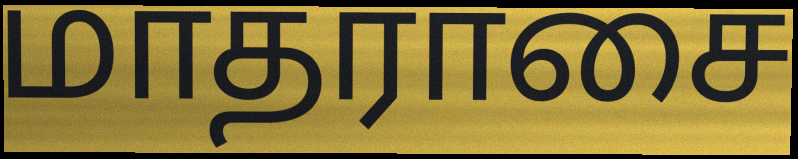
மாதராசை